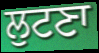
ਲੁਟਣਾ